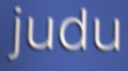
judu